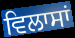
ਵਿਲਾਸਾਂ